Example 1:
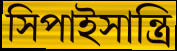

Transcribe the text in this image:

সিপাইসান্ত্রি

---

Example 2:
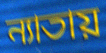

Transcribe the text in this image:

ন্যাতায়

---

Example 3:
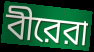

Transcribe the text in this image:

বীরেরা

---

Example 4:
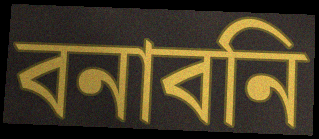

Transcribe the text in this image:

বনাবনি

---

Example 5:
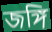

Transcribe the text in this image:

জঙ্গি